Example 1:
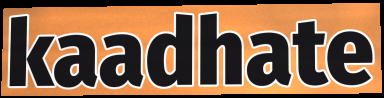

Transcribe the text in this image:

kaadhate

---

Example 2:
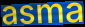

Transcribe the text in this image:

asma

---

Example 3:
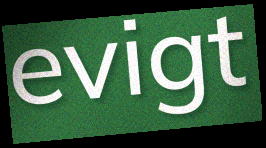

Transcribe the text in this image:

evigt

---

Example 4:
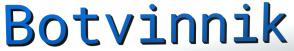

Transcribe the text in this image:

Botvinnik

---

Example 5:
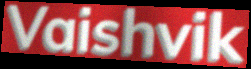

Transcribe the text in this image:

Vaishvik